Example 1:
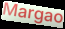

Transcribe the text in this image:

Margao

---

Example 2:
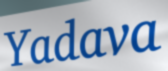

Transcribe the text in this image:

Yadava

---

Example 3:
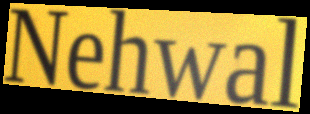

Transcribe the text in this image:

Nehwal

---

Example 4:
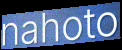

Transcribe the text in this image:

nahoto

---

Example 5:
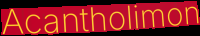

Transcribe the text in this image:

Acantholimon